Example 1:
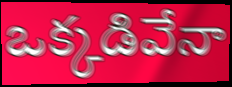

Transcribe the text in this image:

ఒక్కడివేనా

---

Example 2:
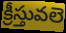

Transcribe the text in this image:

క్రీస్తువలె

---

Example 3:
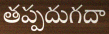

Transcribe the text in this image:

తప్పదుగదా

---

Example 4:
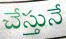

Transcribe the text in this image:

చేస్తునే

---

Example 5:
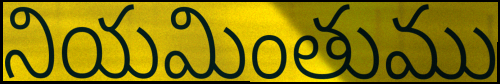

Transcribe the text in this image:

నియమింతుము